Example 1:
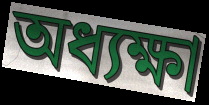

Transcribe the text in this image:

অধ্যক্ষা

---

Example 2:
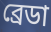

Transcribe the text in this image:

ব্রেডা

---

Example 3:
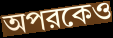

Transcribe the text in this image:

অপরকেও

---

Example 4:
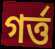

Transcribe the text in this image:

গর্ত্ত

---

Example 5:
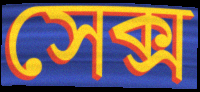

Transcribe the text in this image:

সেক্স